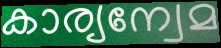
കാര്യന്വേമ